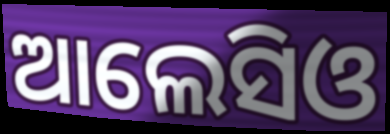
ଆଲେସିଓ